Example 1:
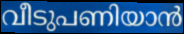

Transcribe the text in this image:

വീടുപണിയാൻ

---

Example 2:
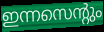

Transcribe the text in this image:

ഇന്നസെന്റും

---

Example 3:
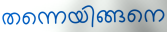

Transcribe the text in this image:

തന്നെയിങ്ങനെ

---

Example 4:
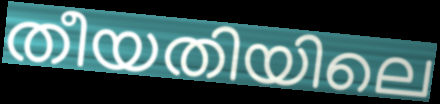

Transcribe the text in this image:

തീയതിയിലെ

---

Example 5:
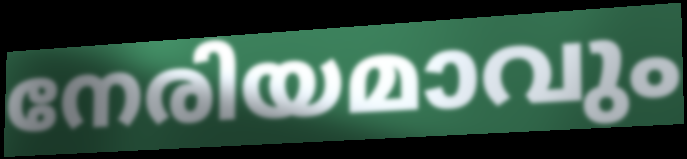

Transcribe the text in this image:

നേരിയമാവും